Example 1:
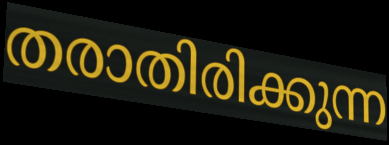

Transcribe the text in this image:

തരാതിരിക്കുന്ന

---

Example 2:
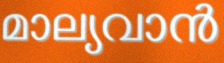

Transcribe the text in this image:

മാല്യവാൻ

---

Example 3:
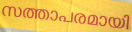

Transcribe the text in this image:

സത്താപരമായി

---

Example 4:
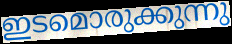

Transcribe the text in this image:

ഇടമൊരുക്കുന്നു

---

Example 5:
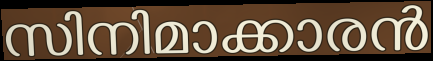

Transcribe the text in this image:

സിനിമാക്കാരൻ